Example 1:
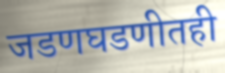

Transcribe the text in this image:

जडणघडणीतही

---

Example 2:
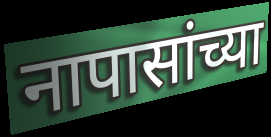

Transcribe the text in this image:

नापासांच्या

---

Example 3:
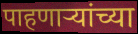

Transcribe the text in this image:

पाहणार्‍यांच्या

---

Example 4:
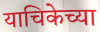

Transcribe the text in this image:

याचिकेच्या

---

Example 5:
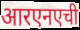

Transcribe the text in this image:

आरएनएची